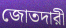
জোতদারী